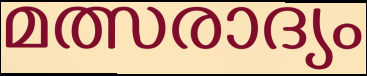
മത്സരാദ്യം